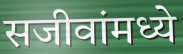
सजीवांमध्ये